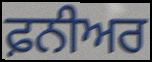
ਫ਼ਨੀਅਰ